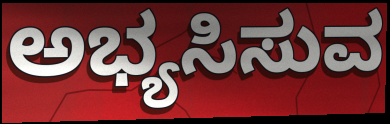
ಅಭ್ಯಸಿಸುವ